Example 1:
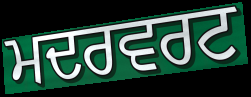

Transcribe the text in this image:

ਮਦਰਵਰਟ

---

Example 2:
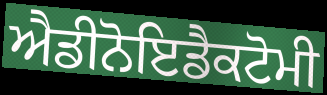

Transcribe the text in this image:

ਐਡੀਨੋਇਡੈਕਟੋਮੀ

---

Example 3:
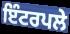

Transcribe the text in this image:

ਇੰਟਰਪਲੇ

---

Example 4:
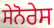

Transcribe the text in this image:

ਸੇਨੋਰੇਸ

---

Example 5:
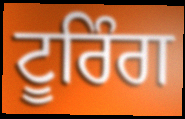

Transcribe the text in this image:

ਟੂਰਿੰਗ